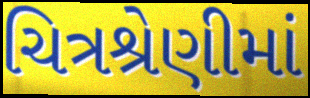
ચિત્રશ્રેણીમાં